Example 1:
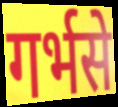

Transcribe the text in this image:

गर्भसे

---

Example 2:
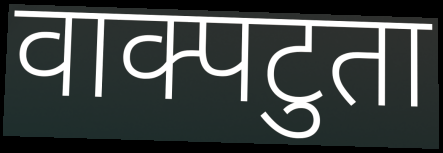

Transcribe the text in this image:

वाक्पटुता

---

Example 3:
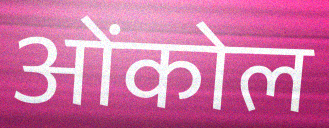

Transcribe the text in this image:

ओंकोल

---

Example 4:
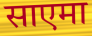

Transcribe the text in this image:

साएमा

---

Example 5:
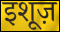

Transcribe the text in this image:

इशूज़